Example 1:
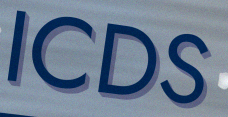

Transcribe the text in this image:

ICDS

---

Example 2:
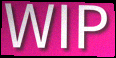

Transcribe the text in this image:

WIP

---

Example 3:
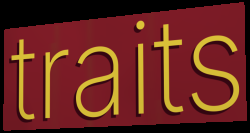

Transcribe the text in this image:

traits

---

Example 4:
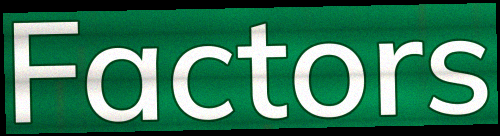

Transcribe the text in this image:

Factors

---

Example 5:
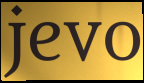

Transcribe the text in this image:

jevo